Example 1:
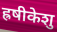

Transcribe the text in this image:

ह्रषीकेशु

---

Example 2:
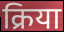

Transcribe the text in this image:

क्रिया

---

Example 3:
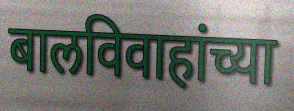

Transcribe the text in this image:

बालविवाहांच्या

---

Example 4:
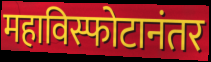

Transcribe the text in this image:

महाविस्फोटानंतर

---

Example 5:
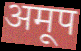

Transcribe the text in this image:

अमूप